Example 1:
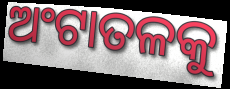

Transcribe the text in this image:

ଅଂଟାତଳକୁ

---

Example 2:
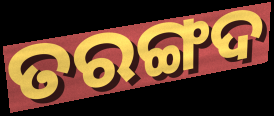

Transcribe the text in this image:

ତରଙ୍ଗଦ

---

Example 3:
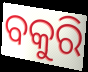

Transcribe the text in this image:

ବକୁରି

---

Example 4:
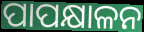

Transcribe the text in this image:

ପାପକ୍ଷାଳନ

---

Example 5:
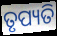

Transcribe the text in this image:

ତୃପ୍ୟତି